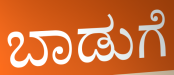
ಬಾಡುಗೆ